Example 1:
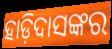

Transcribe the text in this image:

ହାଡ଼ିଦାସଙ୍କର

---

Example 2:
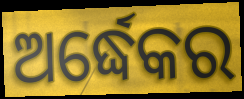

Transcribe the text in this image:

ଅର୍ଦ୍ଧେକର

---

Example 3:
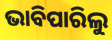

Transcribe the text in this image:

ଭାବିପାରିଲୁ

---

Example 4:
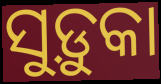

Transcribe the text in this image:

ସୁଡ଼ୁକା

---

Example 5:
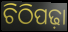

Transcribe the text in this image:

ଚିଠିପଢ଼ା